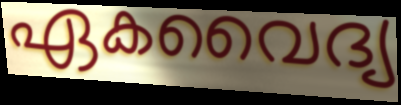
ഏകവൈദ്യ